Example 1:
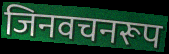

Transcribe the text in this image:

जिनवचनरूप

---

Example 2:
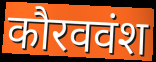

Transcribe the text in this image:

कौरववंश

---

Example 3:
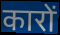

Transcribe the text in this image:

कारों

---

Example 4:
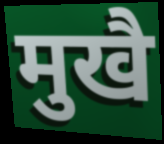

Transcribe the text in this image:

मुखै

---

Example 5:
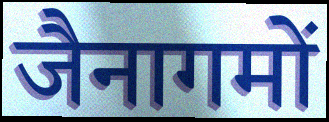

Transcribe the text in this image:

जैनागमों